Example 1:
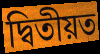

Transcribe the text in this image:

দ্বিতীয়ত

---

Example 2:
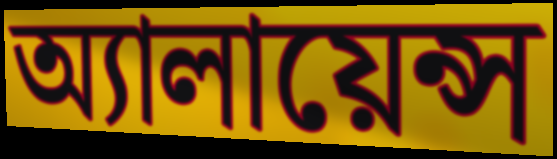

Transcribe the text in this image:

অ্যালায়েন্স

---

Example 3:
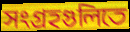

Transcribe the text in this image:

সংগ্রহগুলিতে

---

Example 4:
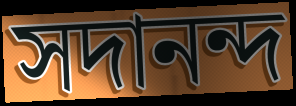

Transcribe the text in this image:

সদানন্দ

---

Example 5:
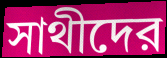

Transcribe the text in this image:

সাথীদের